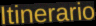
Itinerario